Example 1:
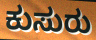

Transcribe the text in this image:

ಕುಸುರು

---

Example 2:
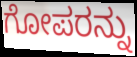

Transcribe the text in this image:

ಗೋಪರನ್ನು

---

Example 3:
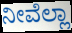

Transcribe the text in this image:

ನೀವೆಲ್ಲಾ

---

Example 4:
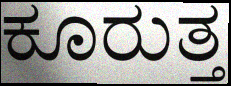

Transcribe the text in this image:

ಕೂರುತ್ತ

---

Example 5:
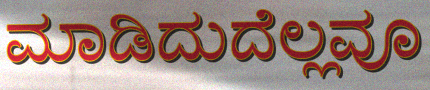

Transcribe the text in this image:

ಮಾಡಿದುದೆಲ್ಲವೂ